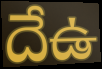
దేఉ